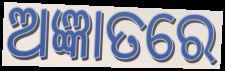
ଅଜ୍ଞାତରେ